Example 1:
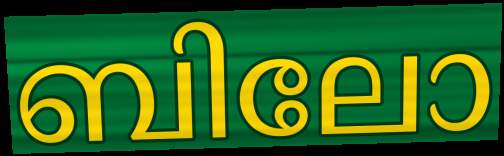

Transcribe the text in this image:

ബിലോ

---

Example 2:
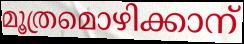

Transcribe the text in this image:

മൂത്രമൊഴിക്കാന്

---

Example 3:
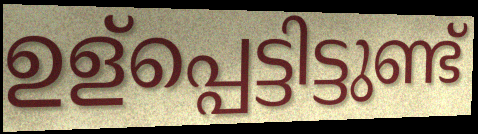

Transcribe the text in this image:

ഉള്പ്പെട്ടിട്ടുണ്ട്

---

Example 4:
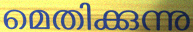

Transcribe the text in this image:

മെതിക്കുന്നു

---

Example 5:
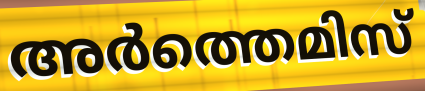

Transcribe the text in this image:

അർത്തെമിസ്